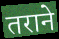
तराने